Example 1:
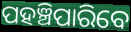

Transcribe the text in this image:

ପହଞ୍ଚିପାରିବେ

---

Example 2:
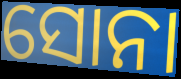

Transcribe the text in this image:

ସୋନା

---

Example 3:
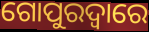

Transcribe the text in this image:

ଗୋପୁରଦ୍ଵାରେ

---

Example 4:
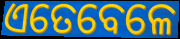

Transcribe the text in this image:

ଏତେବେଳେ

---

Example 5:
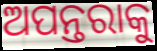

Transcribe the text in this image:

ଅପନ୍ତରାକୁ